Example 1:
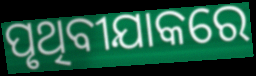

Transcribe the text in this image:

ପୃଥିବୀଯାକରେ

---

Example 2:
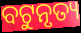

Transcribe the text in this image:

ବଟୁନୃତ୍ୟ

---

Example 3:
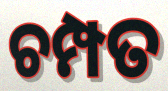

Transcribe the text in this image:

ଚମ୍ପତ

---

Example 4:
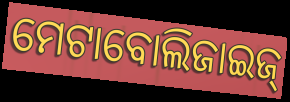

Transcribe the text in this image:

ମେଟାବୋଲିଜାଇଜ୍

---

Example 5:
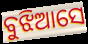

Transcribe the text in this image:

ବୁଝିଆସେ